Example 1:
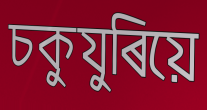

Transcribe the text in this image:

চকুযুৰিয়ে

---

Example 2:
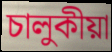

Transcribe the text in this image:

চালুকীয়া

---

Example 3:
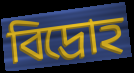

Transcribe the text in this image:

বিদ্ৰোহ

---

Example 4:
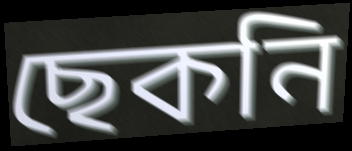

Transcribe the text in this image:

ছেকনি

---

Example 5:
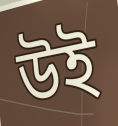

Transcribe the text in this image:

উই